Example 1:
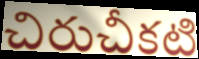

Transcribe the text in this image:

చిరుచీకటి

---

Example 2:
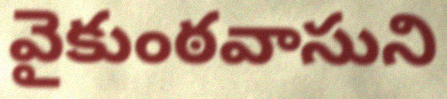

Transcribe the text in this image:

వైకుంఠవాసుని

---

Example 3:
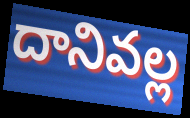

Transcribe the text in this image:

దానివల్ల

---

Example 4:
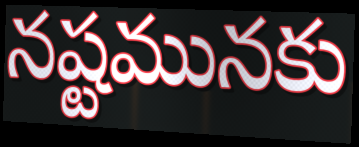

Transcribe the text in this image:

నష్టమునకు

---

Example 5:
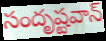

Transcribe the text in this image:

సందృష్టవాన్